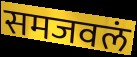
समजवलं